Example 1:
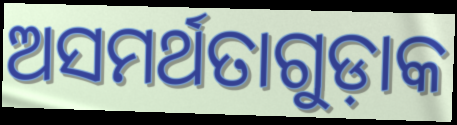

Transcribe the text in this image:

ଅସମର୍ଥତାଗୁଡ଼ାକ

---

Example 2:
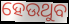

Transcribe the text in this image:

ହେଉଥୁବ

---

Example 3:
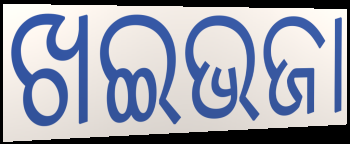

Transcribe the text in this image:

ଖଇଭଜା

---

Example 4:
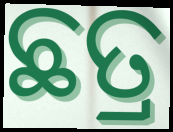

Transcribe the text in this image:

ଛତ୍ର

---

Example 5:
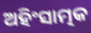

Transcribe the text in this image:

ଅହିଂସାତ୍ମକ